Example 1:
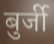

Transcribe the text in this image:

बुर्जी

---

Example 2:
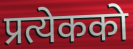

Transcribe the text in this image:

प्रत्येकको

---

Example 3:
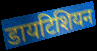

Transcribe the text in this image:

डायटिशियन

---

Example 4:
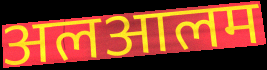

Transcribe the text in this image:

अलआलम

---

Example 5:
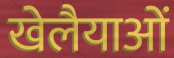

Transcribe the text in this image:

खेलैयाओं